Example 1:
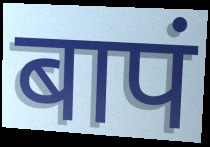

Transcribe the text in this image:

बापं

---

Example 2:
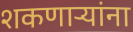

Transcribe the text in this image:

शकणार्‍यांना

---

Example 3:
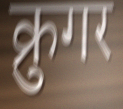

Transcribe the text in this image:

क्रुगर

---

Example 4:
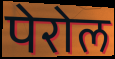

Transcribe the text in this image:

पेरोल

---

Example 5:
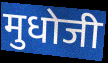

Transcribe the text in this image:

मुधोजी